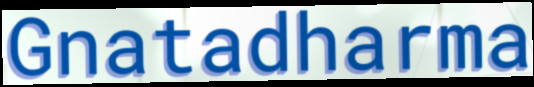
Gnatadharma